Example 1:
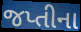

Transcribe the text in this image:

જપ્તીના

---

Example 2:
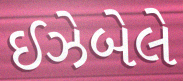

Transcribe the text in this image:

ઈઝેબેલે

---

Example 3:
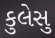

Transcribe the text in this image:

કુલેસુ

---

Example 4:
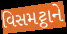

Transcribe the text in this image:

વિસમટ્ઠાને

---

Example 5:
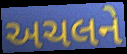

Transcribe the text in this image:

અચલને